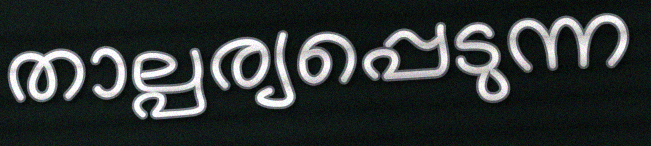
താല്പര്യപ്പെടുന്ന